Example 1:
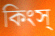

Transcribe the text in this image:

কিংস্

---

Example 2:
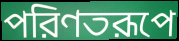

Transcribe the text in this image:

পরিণতরূপে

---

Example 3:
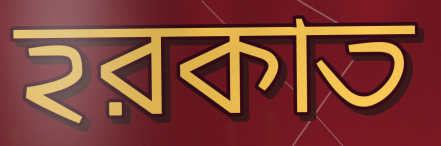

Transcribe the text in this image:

হরকাত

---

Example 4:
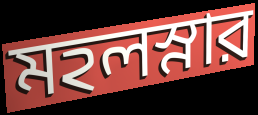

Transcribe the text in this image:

মহলস্নার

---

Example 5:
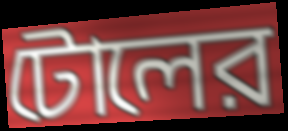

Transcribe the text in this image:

টোলের